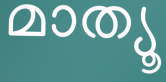
മാത്യൂ